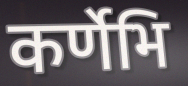
कर्णेभि